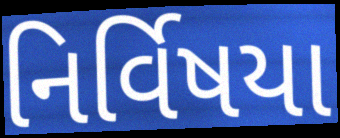
નિર્વિષયા